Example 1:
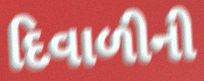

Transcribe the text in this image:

દિવાળીની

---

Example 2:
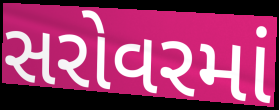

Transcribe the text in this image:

સરોવરમાં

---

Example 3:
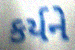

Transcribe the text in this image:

કર્યને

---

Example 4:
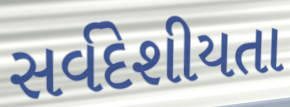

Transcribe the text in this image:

સર્વદેશીયતા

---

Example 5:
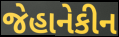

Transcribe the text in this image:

જેહાનેકીન